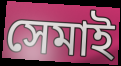
সেমাই